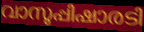
വാസുപ്പിഷാരടി